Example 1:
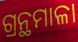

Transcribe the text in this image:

ଗ୍ରନ୍ଥମାଳା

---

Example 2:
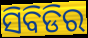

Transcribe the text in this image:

ସିବିଡିର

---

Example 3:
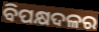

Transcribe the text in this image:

ବିପକ୍ଷଦଳର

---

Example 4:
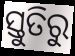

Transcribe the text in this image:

ସ୍ତୁତିରୁ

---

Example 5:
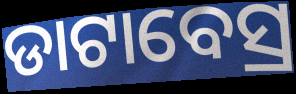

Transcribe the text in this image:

ଡାଟାବେସ୍ର